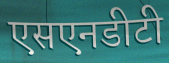
एसएनडीटी